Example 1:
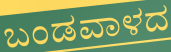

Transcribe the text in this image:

ಬಂಡವಾಳದ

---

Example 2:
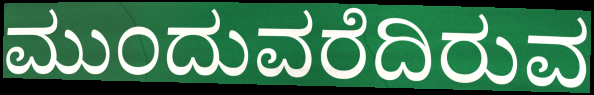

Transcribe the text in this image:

ಮುಂದುವರೆದಿರುವ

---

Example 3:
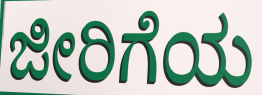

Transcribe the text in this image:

ಜೀರಿಗೆಯ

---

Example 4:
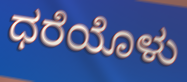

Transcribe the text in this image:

ಧರೆಯೊಳು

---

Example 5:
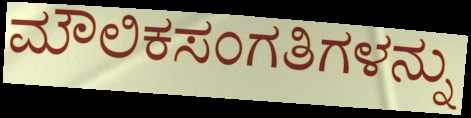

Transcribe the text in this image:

ಮೌಲಿಕಸಂಗತಿಗಳನ್ನು